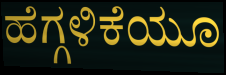
ಹೆಗ್ಗಳಿಕೆಯೂ